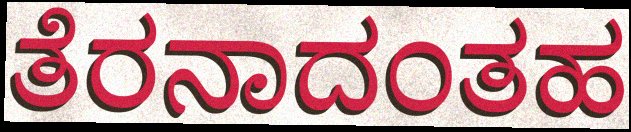
ತೆರನಾದಂತಹ